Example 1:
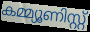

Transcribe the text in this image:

കമ്മ്യൂണിസ്റ്റ്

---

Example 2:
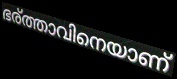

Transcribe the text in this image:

ഭര്ത്താവിനെയാണ്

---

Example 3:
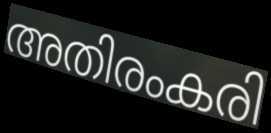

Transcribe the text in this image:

അതിരംകരി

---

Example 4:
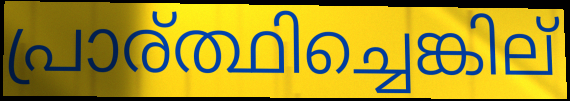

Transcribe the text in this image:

പ്രാര്ത്ഥിച്ചെങ്കില്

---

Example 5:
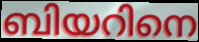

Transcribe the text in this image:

ബിയറിനെ